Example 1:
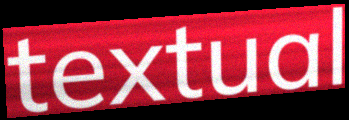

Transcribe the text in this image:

textual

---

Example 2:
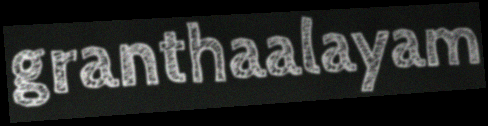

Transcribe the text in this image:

granthaalayam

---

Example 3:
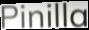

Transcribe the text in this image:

Pinilla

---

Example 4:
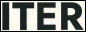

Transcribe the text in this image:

ITER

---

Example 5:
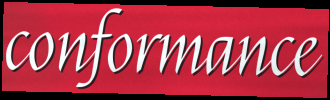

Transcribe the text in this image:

conformance